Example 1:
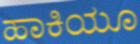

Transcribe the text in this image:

ಹಾಕಿಯೂ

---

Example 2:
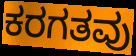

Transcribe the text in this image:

ಕರಗತವು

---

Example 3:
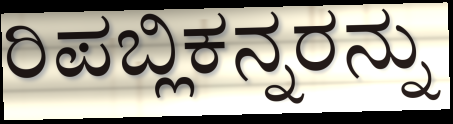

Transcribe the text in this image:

ರಿಪಬ್ಲಿಕನ್ನರನ್ನು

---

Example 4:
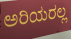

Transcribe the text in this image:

ಅರಿಯರಲ್ಲ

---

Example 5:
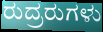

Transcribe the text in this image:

ರುದ್ರರುಗಳು